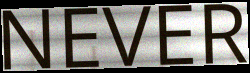
NEVER